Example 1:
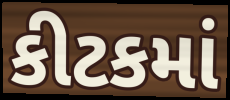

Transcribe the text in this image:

કીટકમાં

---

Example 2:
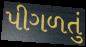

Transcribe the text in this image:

પીગળતું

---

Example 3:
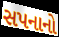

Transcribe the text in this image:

સપનાનો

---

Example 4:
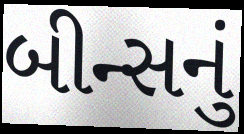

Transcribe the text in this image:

બીન્સનું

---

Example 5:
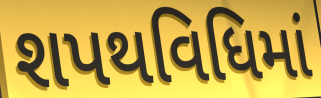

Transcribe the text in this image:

શપથવિધિમાં